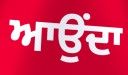
ਆਉਂਦਾ